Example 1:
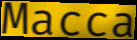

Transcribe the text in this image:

Macca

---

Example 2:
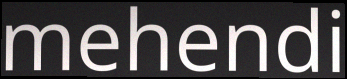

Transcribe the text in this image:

mehendi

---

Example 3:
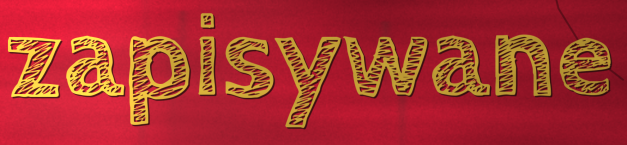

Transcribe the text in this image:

zapisywane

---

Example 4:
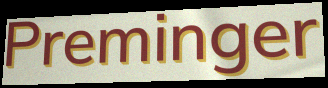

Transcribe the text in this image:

Preminger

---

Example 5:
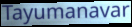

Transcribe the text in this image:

Tayumanavar